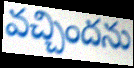
వచ్చిందను